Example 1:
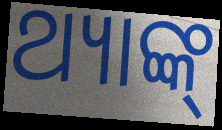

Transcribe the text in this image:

ଥ୍ୟାଙ୍କ୍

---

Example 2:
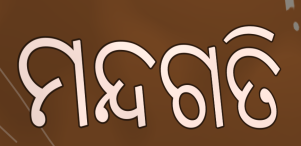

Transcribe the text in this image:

ମନ୍ଦଗତି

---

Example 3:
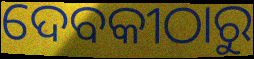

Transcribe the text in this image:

ଦେବକୀଠାରୁ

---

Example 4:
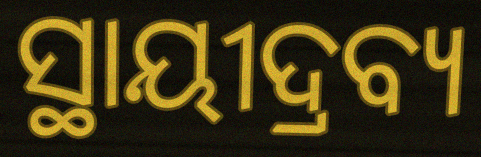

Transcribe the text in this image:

ସ୍ଥାୟୀଦ୍ରବ୍ୟ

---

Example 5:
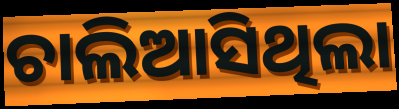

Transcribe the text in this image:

ଚାଲିଆସିଥିଲା